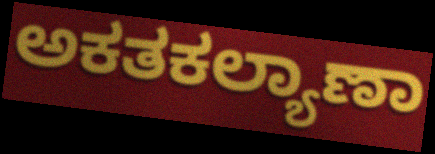
ಅಕತಕಲ್ಯಾಣಾ